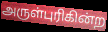
அருள்புரிகின்ற